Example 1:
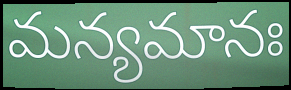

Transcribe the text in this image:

మన్యమానః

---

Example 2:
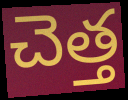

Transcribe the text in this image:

చెత్త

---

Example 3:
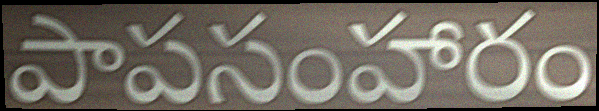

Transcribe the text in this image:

పాపసంహారం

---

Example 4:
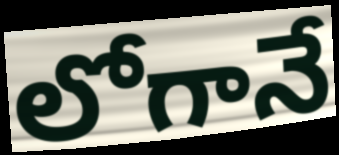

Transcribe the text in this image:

లోగానే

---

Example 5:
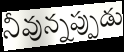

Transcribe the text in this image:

నీవున్నప్పుడు